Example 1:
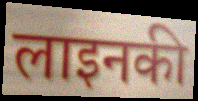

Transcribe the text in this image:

लाइनकी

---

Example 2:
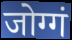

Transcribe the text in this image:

जोग्गं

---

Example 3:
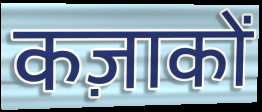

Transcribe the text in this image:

कज़ाकों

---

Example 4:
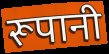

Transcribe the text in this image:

रूपानी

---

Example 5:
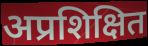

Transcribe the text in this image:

अप्रशिक्षित